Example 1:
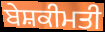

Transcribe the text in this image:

ਬੇਸ਼ਕੀਮਤੀ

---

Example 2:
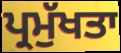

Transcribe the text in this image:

ਪ੍ਰਮੁੱਖਤਾ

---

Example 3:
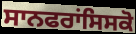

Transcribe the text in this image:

ਸਾਨਫਰਾਂਸਿਸਕੋ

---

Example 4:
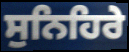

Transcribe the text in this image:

ਸੁਨਿਹਿਰੇ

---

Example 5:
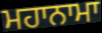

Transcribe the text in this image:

ਮਹਾਨਾਮਾ